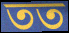
তত